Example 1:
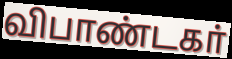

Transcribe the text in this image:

விபாண்டகர்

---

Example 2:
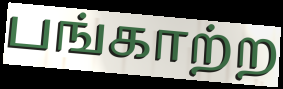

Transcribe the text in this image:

பங்காற்ற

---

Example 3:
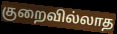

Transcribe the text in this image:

குறைவில்லாத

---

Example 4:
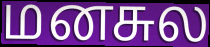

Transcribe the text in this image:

மனசுல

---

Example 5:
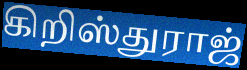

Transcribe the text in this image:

கிறிஸ்துராஜ்